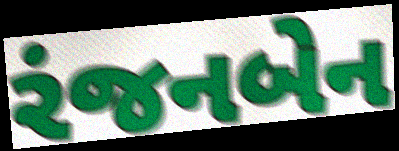
રંજનબેન